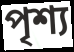
পৃশ্য